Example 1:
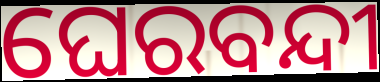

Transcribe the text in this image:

ଘେରବନ୍ଦୀ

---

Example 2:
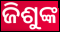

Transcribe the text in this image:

ଜିଶୁଙ୍କ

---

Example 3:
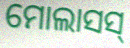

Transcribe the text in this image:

ମୋଲାସସ୍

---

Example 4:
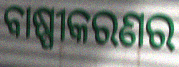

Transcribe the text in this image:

ବାଷ୍ପୀକରଣର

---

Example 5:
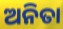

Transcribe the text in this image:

ଅନିତା